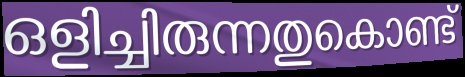
ഒളിച്ചിരുന്നതുകൊണ്ട്